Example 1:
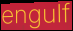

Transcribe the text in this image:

engulf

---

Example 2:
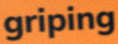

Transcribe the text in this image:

griping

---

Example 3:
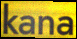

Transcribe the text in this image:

kana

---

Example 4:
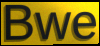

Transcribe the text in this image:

Bwe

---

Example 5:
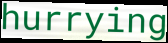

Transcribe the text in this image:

hurrying